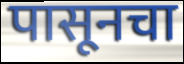
पासूनचा